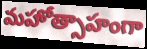
మహోత్సాహంగా